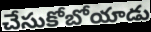
చేసుకోబోయాడు